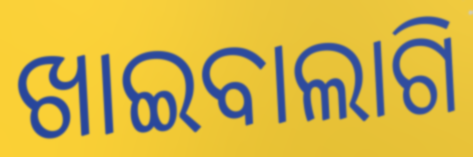
ଖାଇବାଲାଗି